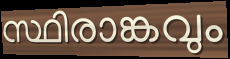
സ്ഥിരാങ്കവും